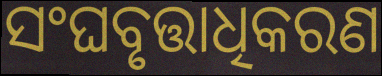
ସଂଘବୃତ୍ତାଧିକରଣ